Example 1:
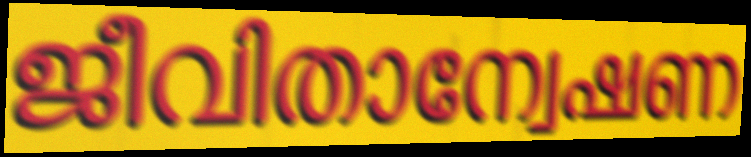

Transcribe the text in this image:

ജീവിതാന്വേഷണ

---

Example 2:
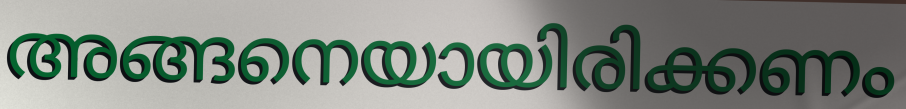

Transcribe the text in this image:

അങ്ങനെയായിരിക്കണം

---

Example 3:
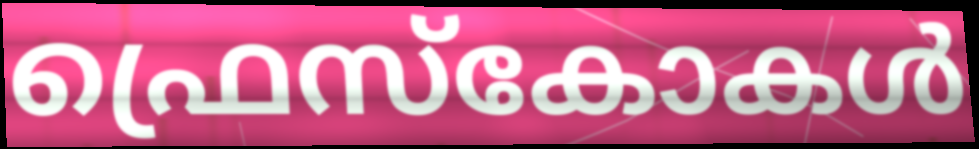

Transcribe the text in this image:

ഫ്രെസ്കോകൾ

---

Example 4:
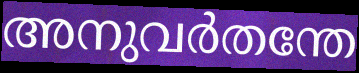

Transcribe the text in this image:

അനുവർതന്തേ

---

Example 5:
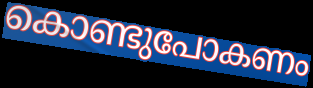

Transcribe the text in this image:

കൊണ്ടുപോകണം